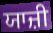
ਯਾਜ਼ੀ